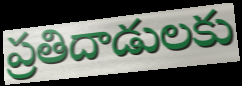
ప్రతిదాడులకు